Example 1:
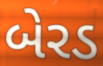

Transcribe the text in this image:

બેરડ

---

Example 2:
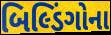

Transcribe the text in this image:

બિલ્ડિંગોના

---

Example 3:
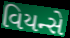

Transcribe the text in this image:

વિયન્સે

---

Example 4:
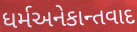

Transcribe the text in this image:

ધર્મઅનેકાન્તવાદ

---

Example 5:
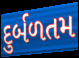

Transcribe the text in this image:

દુર્બળતમ